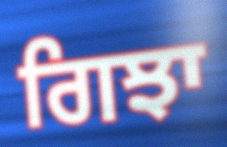
ਗਿਝਾ